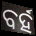
ବର୍ହ